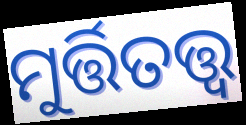
ମୁର୍ତ୍ତିତତ୍ତ୍ବ